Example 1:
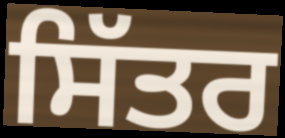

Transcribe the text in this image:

ਸਿੱਤਰ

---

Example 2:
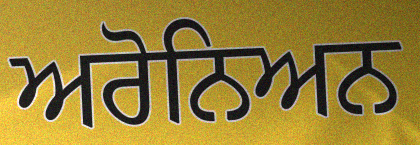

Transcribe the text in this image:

ਅਰੋਨਿਅਨ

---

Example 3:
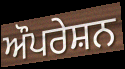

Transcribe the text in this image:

ਔਪਰੇਸ਼ਨ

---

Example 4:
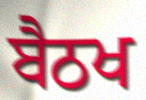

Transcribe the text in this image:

ਬੈਠਖ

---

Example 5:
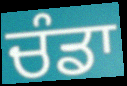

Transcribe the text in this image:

ਚੰਡਾ